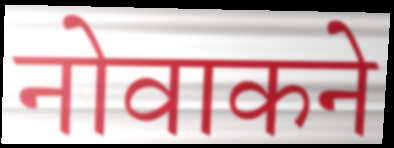
नोवाकने